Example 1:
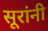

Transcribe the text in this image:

सूरांनी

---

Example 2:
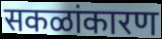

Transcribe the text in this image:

सकळांकारण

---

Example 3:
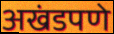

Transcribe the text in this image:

अखंडपणे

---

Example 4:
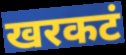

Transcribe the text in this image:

खरकटं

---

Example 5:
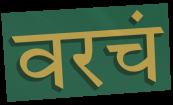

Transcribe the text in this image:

वरचं